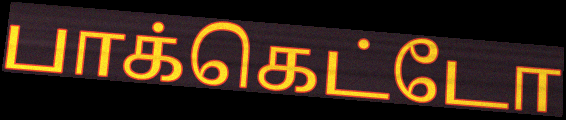
பாக்கெட்டோ